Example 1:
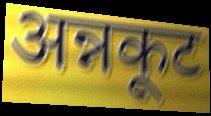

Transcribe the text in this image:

अन्नकूट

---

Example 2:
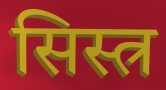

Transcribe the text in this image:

सिस्त्र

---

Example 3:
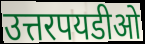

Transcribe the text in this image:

उत्तरपयडीओ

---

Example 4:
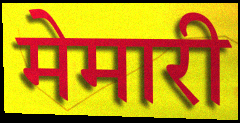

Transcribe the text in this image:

मेमारी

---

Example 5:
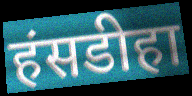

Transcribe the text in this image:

हंसडीहा